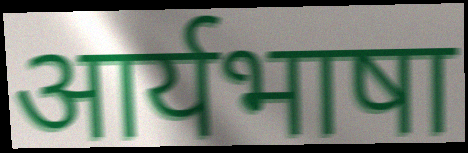
आर्यभाषा